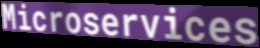
Microservices